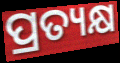
ପ୍ରତ୍ୟକ୍ଷ